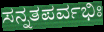
ಸನ್ನತಪರ್ವಭಿಃ